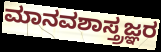
ಮಾನವಶಾಸ್ತ್ರಜ್ಞರ